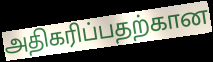
அதிகரிப்பதற்கான